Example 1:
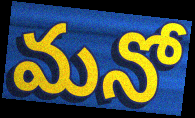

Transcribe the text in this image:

మనో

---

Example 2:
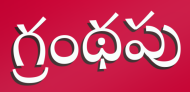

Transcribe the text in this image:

గ్రంథపు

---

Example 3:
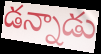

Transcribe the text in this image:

డన్నాడు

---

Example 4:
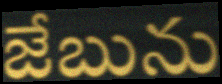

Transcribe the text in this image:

జేబును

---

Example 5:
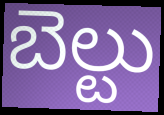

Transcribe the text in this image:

బెల్టు